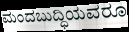
ಮಂದಬುದ್ಧಿಯವರೂ